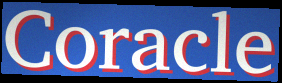
Coracle